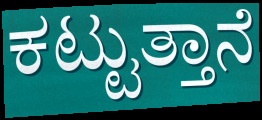
ಕಟ್ಟುತ್ತಾನೆ